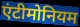
एंटीमोनियम